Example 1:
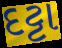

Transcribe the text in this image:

દટ્ટા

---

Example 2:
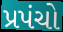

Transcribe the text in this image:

પ્રપંચો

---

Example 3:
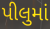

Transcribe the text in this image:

પીલુમાં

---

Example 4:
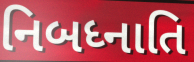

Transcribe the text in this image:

નિબધ્નાતિ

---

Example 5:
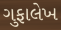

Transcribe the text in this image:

ગુફાલેખ